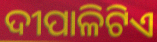
ଦୀପାଳିଟିଏ